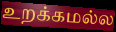
உறக்கமல்ல